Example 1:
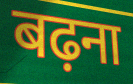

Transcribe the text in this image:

बढ़ना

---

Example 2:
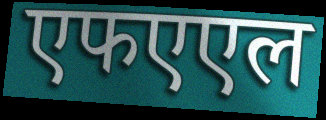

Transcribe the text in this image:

एफएएल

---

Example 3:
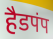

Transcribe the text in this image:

हैडपंप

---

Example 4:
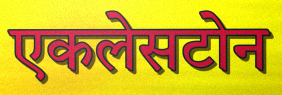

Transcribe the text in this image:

एकलेसटोन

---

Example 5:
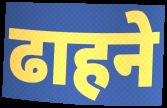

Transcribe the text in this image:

ढाहने